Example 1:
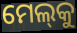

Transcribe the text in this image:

ମେଲ୍‌କୁ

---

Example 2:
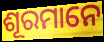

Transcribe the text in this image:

ଶୂରମାନେ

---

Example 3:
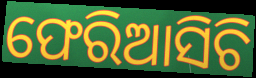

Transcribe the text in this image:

ଫେରିଆସିଚି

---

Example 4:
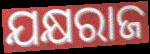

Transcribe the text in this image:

ଯକ୍ଷରାଜ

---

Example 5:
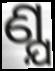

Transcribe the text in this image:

ଣ୍ଯ